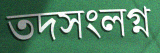
তদসংলগ্ন